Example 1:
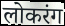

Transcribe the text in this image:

लोकरंग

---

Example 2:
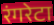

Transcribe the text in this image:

रंगरेटा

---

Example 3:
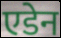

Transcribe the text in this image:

एडेन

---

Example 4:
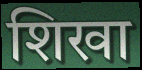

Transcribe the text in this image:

शिखा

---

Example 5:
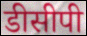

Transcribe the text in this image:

डीसीपी